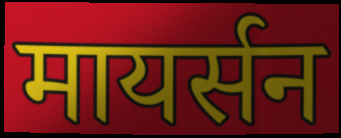
मायर्सन